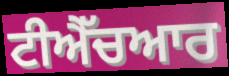
ਟੀਐੱਚਆਰ